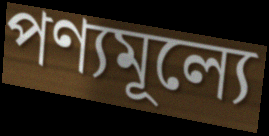
পণ্যমূল্যে